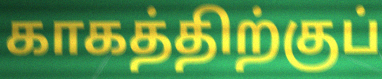
காகத்திற்குப்